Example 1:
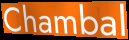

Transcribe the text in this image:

Chambal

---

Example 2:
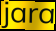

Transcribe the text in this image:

jara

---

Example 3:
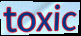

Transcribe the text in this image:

toxic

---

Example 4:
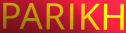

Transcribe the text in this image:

PARIKH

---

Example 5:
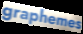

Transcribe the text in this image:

graphemes